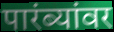
पारंब्यांवर